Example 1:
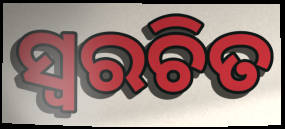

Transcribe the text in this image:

ସ୍ଵରଚିତ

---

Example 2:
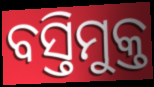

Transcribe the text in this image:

ବସ୍ତିମୁକ୍ତ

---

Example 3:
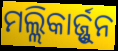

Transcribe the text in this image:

ମଲ୍ଲିକାର୍ଜ୍ଜୁନ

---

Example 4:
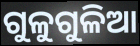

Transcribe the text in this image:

ଗୁଳୁଗୁଳିଆ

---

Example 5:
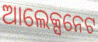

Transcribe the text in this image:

ଆଲେକ୍ସନେଟ